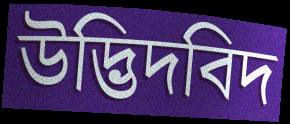
উদ্ভিদবিদ